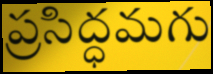
ప్రసిద్ధమగు